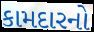
કામદારનો